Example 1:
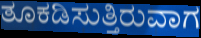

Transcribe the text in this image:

ತೂಕಡಿಸುತ್ತಿರುವಾಗ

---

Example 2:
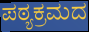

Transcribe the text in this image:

ಪಠ್ಯಕ್ರಮದ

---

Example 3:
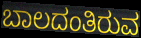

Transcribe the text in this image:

ಬಾಲದಂತಿರುವ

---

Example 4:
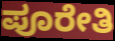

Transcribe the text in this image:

ಪೂರೇತಿ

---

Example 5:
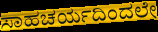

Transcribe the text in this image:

ಸಾಹಚರ್ಯದಿಂದಲೇ